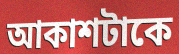
আকাশটাকে